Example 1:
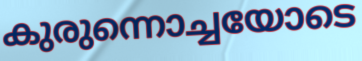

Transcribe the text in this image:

കുരുന്നൊച്ചയോടെ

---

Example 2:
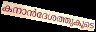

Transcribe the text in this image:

കനാൻദേശത്തുകൂടെ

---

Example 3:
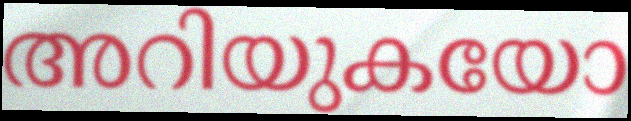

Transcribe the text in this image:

അറിയുകയോ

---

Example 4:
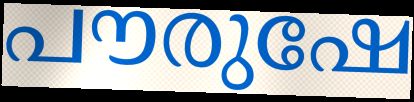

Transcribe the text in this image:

പൗരുഷേ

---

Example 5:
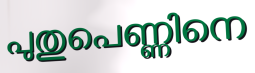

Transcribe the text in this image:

പുതുപെണ്ണിനെ